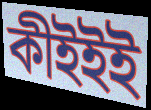
কীইইই